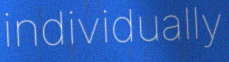
individually